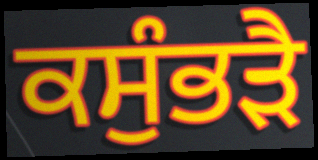
ਕਸੁੰਭੜੈ